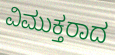
ವಿಮುಕ್ತರಾದ